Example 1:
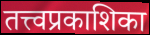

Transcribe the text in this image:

तत्त्वप्रकाशिका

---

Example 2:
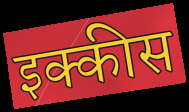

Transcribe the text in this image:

इक्‍कीस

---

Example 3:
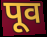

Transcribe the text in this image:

पूव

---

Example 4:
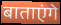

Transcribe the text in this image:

बाताएंगे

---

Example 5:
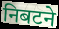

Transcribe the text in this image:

निबटने